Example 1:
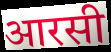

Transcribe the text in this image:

आरसी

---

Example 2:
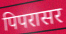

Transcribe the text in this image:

पिपरासर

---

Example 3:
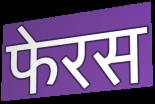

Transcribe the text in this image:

फेरस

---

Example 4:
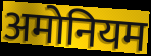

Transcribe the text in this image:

अमोनियम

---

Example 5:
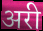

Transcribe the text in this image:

अरी